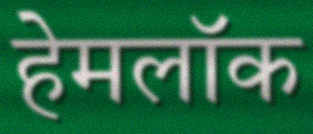
हेमलॉक